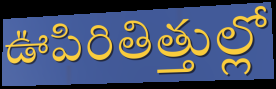
ఊపిరితిత్తుల్లో